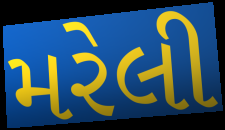
મરેલી